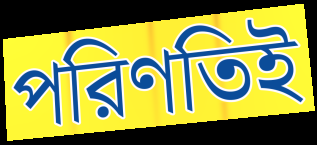
পরিণতিই